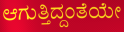
ಆಗುತ್ತಿದ್ದಂತೆಯೇ